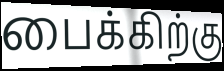
பைக்கிற்கு